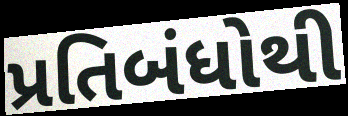
પ્રતિબંધોથી